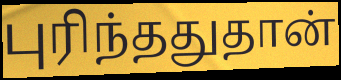
புரிந்ததுதான்